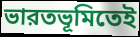
ভারতভূমিতেই